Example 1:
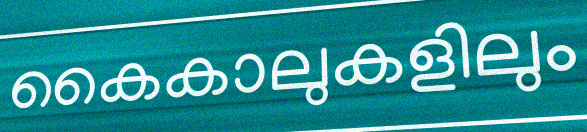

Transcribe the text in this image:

കൈകാലുകളിലും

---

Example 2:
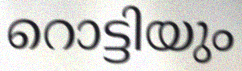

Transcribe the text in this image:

റൊട്ടിയും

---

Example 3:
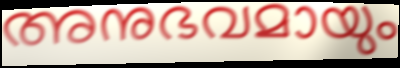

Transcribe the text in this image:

അനുഭവമായും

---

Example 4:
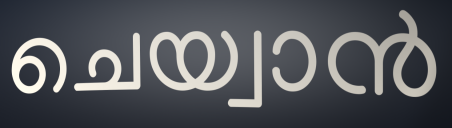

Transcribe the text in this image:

ചെയ്വാൻ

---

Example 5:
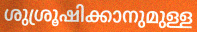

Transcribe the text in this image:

ശുശ്രൂഷിക്കാനുമുള്ള